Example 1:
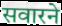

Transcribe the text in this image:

सवारने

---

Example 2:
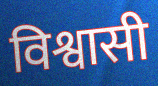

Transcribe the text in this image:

विश्वासी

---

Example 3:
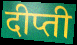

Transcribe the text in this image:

दीप्ती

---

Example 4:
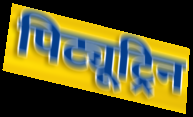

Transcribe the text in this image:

पिट्यूट्रिन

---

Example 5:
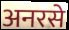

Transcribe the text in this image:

अनरसे